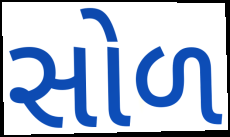
સોળ